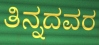
ತಿನ್ನದವರ